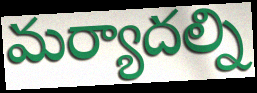
మర్యాదల్ని